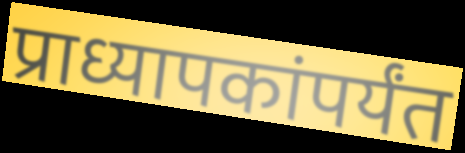
प्राध्यापकांपर्यंत